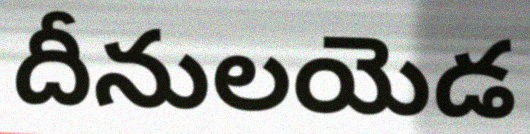
దీనులయెడ